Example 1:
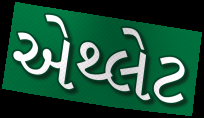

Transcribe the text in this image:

એથ્લેટ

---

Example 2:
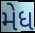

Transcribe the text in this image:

મેધ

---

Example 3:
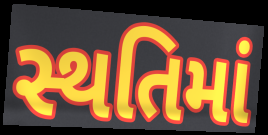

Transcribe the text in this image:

સ્થતિમાં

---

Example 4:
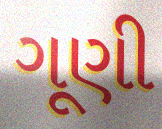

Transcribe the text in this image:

ગૂણી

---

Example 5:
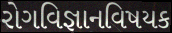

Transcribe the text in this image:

રોગવિજ્ઞાનવિષયક